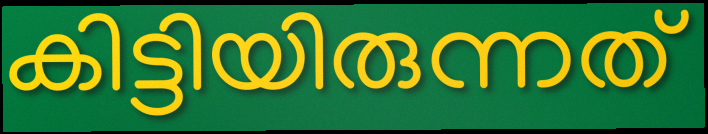
കിട്ടിയിരുന്നത്